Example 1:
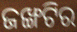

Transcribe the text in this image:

ଜଙ୍ଖଟିର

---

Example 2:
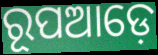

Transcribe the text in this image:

ରୂପଆଡ଼େ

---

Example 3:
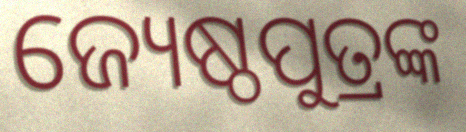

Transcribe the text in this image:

ଜ୍ୟେଷ୍ଠପୁତ୍ରଙ୍କ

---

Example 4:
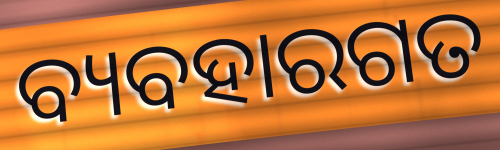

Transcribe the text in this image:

ବ୍ୟବହାରଗତ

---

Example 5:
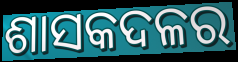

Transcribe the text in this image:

ଶାସକଦଳର